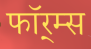
फॉर्म्स